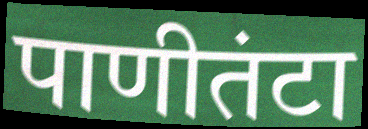
पाणीतंटा